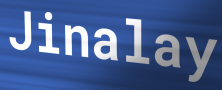
Jinalay